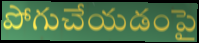
పోగుచేయడంపై